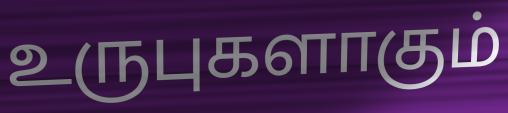
உருபுகளாகும்